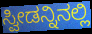
ಸ್ವೀಡನ್ನಿನಲ್ಲಿ